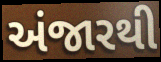
અંજારથી